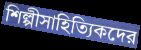
শিল্পীসাহিত্যিকদের